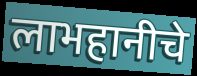
लाभहानीचे